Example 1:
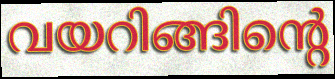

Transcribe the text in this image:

വയറിങ്ങിന്റെ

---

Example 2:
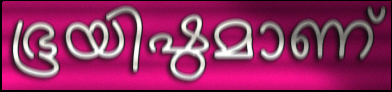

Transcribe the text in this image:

ഭൂയിഷ്ഠമാണ്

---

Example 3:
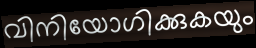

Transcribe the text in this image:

വിനിയോഗിക്കുകയും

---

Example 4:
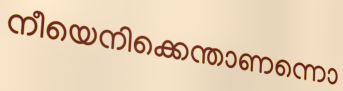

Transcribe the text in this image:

നീയെനിക്കെന്താണന്നൊ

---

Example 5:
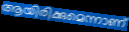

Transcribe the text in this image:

ആയിരിക്കുമെന്നാണ്